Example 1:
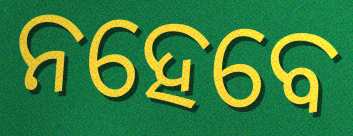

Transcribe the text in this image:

ନହେବେ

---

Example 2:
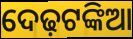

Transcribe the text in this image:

ଦେଢ଼ଟଙ୍କିଆ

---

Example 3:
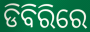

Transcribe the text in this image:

ଡିବିରିରେ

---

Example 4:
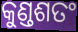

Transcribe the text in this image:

କୁଣ୍ଡଶତଂ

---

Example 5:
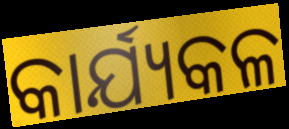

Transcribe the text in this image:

କାର୍ଯ୍ୟକଳ